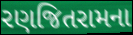
રણજિતરામના